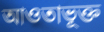
আওতাভূক্ত